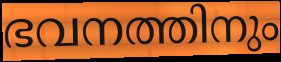
ഭവനത്തിനും